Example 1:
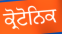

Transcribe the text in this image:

ਕ੍ਰੋਟੋਨਿਕ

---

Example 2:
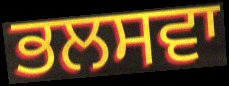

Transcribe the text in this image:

ਭਲਸਵਾ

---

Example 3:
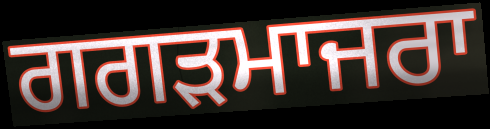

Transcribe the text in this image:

ਗਗੜਮਾਜਰਾ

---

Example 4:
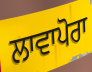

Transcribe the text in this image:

ਲਾਵਾਪੋਰਾ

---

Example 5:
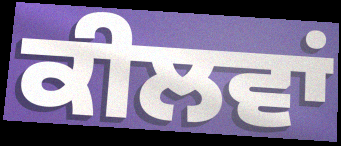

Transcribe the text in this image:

ਕੀਲਵਾਂ